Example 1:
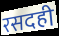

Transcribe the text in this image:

रसदही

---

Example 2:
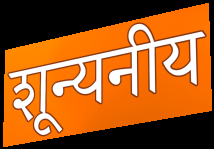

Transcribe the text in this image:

शून्यनीय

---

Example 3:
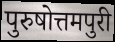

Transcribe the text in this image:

पुरुषोत्तमपुरी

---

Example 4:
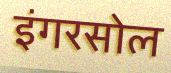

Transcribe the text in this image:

इंगरसोल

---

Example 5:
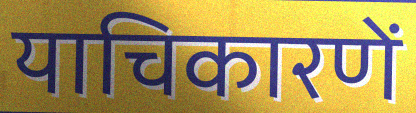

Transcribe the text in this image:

याचिकारणें